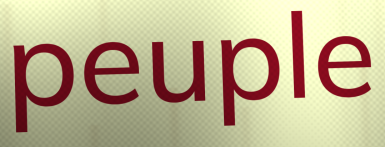
peuple